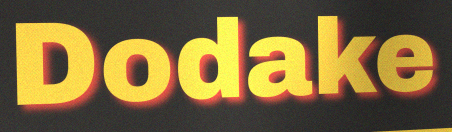
Dodake